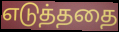
எடுத்ததை